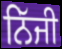
ਨਿੱਜੀ